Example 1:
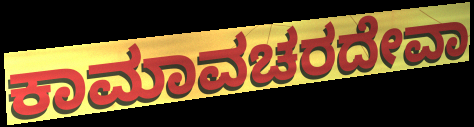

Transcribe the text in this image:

ಕಾಮಾವಚರದೇವಾ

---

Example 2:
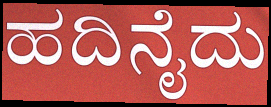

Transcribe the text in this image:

ಹದಿನೈದು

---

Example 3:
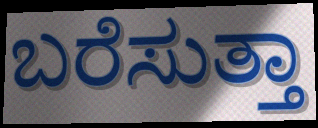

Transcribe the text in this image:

ಬರೆಸುತ್ತಾ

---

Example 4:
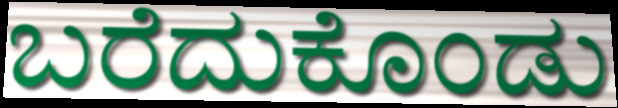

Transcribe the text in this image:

ಬರೆದುಕೊಂಡು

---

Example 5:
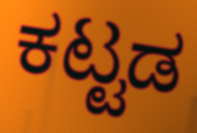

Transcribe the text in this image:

ಕಟ್ಟಡ